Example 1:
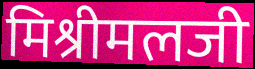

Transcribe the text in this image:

मिश्रीमलजी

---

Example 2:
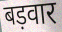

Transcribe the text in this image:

बड़वार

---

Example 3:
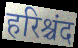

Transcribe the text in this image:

हरिश्चंद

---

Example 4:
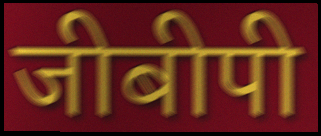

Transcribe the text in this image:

जीबीपी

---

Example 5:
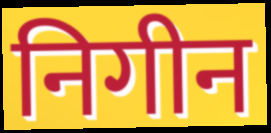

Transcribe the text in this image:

निगीन